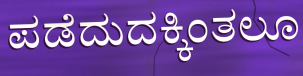
ಪಡೆದುದಕ್ಕಿಂತಲೂ